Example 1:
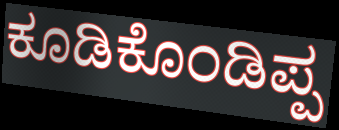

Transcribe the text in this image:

ಕೂಡಿಕೊಂಡಿಪ್ಪ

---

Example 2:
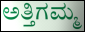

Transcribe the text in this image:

ಅತ್ತಿಗಮ್ಮ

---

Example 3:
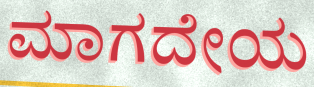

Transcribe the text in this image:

ಮಾಗದೇಯ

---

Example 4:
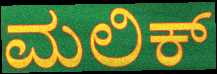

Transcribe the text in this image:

ಮಲಿಕ್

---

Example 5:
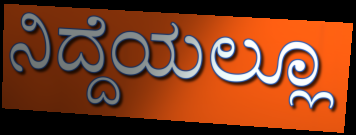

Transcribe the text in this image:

ನಿದ್ದೆಯಲ್ಲೂ